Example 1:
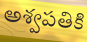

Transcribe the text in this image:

అశ్వపతికి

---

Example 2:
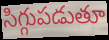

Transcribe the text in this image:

సిగ్గుపడుతూ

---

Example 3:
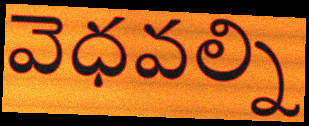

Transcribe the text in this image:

వెధవల్ని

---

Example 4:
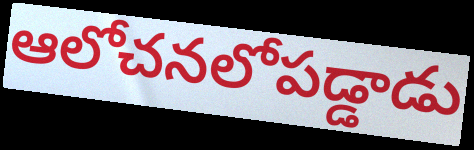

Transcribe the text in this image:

ఆలోచనలోపడ్డాడు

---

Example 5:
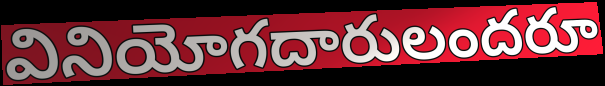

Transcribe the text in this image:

వినియోగదారులందరూ